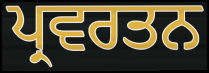
ਪ੍ਰਵਰਤਨ